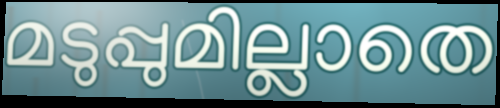
മടുപ്പുമില്ലാതെ